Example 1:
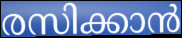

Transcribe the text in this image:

രസിക്കാൻ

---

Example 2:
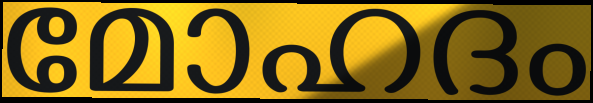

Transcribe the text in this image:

മോഹദം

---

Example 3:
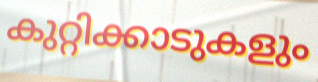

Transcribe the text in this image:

കുറ്റിക്കാടുകളും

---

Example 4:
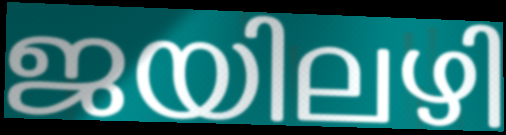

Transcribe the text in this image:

ജയിലഴി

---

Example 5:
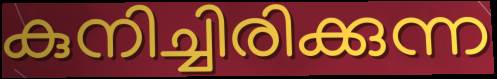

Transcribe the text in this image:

കുനിച്ചിരിക്കുന്ന